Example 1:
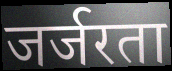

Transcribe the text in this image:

जर्जरता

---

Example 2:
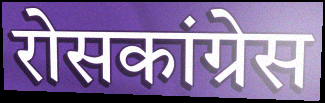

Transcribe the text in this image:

रोसकांग्रेस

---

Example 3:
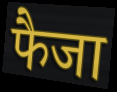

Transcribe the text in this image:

फैजा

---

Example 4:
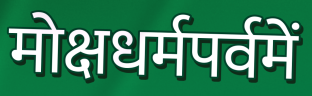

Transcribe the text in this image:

मोक्षधर्मपर्वमें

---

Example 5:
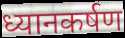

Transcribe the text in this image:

ध्यानकर्षण